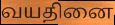
வயதினை